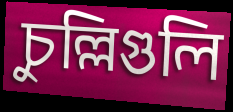
চুল্লিগুলি